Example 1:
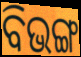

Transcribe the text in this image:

ବିଭଙ୍ଗ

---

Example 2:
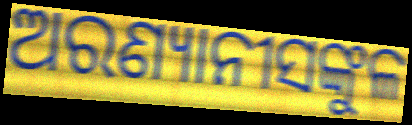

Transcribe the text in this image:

ଅରଣ୍ୟାନୀସଙ୍କୁଳ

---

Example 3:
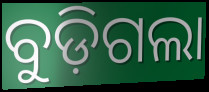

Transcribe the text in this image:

ବୁଡ଼ିଗଲା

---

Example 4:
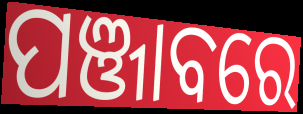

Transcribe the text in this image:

ପଞ୍ଜାବରେ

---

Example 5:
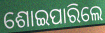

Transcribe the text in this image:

ଶୋଇପାରିଲେ